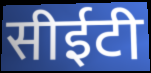
सीईटी